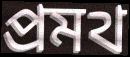
প্রমথ